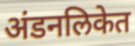
अंडनलिकेत